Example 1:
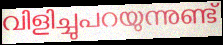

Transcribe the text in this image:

വിളിച്ചുപറയുന്നുണ്ട്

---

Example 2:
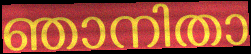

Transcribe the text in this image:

ഞാനിതാ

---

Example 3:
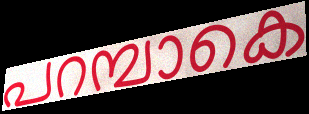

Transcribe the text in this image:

പറമ്പാകെ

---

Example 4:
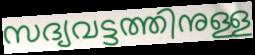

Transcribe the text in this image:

സദ്യവട്ടത്തിനുള്ള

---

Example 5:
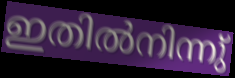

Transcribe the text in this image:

ഇതിൽനിന്നു്